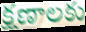
క్షణాలకు